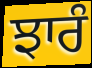
ਝਾਰੰ